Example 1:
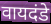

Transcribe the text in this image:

वायदंडे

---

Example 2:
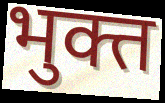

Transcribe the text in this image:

भुक्त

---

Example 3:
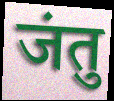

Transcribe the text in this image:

जंतु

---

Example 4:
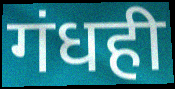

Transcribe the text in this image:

गंधही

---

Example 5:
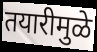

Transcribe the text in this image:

तयारीमुळे